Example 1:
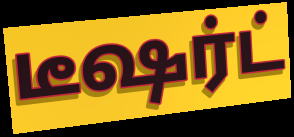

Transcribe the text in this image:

டீஷர்ட்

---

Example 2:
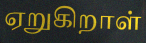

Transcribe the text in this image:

ஏறுகிறாள்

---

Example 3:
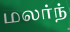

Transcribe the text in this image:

மலர்ந்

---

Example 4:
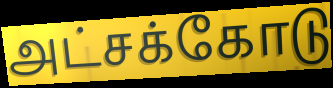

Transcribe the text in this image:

அட்சக்கோடு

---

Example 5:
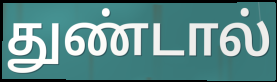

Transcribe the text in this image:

துண்டால்